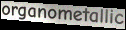
organometallic